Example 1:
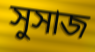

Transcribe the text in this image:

সুসাজ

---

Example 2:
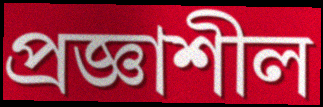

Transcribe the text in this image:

প্রজ্ঞাশীল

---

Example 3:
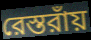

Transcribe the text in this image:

রেস্তরাঁয়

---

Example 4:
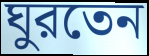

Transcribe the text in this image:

ঘুরতেন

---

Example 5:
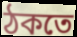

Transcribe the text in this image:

ঠকতে